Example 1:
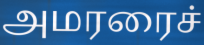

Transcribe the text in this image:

அமரரைச்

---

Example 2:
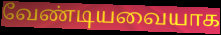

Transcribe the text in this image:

வேண்டியவையாக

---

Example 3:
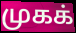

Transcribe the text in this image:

முகக்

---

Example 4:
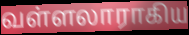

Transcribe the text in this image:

வள்ளலாராகிய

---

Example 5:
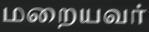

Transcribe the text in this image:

மறையவர்